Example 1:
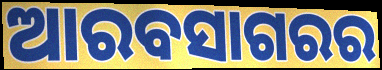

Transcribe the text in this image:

ଆରବସାଗରର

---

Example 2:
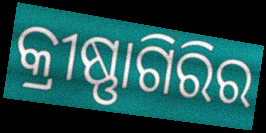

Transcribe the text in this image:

କ୍ରୀଷ୍ଣାଗିରିର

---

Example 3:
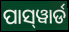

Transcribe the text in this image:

ପାସ୍‌ୱାର୍ଡ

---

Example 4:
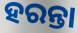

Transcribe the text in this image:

ହରନ୍ତା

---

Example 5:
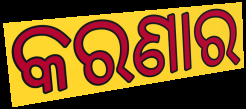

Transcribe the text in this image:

କରଣାର